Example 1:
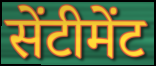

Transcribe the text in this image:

सेंटीमेंट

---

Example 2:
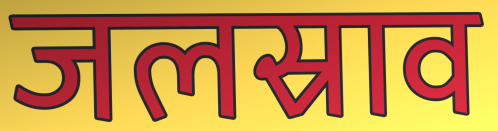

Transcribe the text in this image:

जलस्राव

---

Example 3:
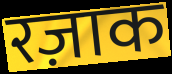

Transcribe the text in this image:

रज़ाक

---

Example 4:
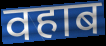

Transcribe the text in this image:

वहाब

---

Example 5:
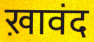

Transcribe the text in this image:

ख़ावंद